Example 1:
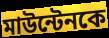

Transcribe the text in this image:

মাউন্টেনকে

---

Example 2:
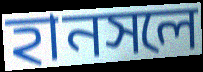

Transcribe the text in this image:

হানসলে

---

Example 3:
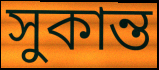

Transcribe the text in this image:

সুকান্ত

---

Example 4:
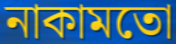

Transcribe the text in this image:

নাকামতো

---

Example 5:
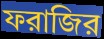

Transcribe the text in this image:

ফরাজির